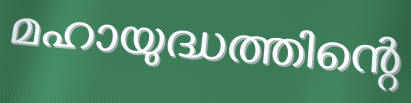
മഹായുദ്ധത്തിന്റെ